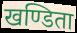
खण्डिता